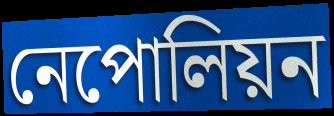
নেপোলিয়ন